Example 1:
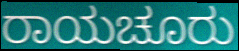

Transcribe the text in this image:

ರಾಯಚೂರು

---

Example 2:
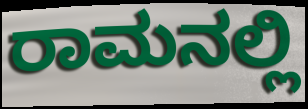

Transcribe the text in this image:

ರಾಮನಲ್ಲಿ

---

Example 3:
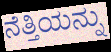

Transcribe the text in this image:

ನೆತ್ತಿಯನ್ನು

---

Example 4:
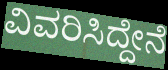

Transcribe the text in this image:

ವಿವರಿಸಿದ್ದೇನೆ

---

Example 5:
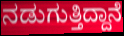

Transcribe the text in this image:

ನಡುಗುತ್ತಿದ್ದಾನೆ